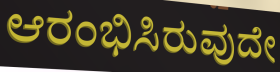
ಆರಂಭಿಸಿರುವುದೇ